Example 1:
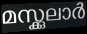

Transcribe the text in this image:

മസ്ക്കുലാർ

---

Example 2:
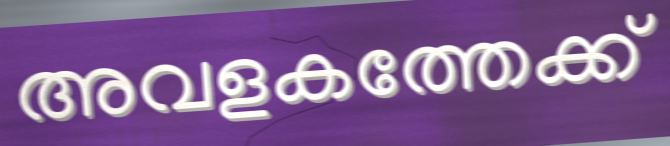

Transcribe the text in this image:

അവളകത്തേക്ക്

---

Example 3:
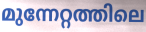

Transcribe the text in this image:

മുന്നേറ്റത്തിലെ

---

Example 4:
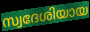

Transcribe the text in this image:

സ്വദേശിയായ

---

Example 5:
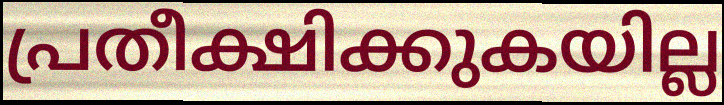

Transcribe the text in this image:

പ്രതീക്ഷിക്കുകയില്ല